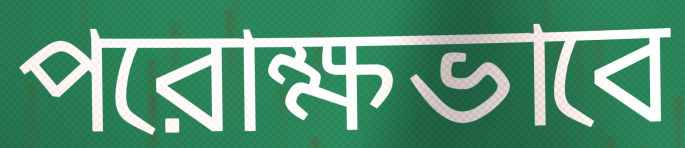
পরোক্ষভাবে